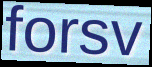
forsv